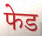
फेड